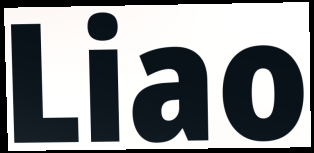
Liao